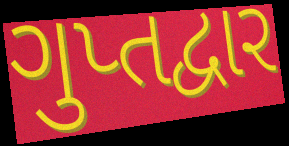
ગુપ્તદ્વાર